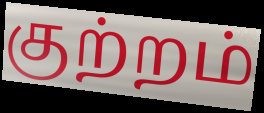
குற்றம்